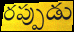
రప్పుడు